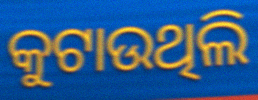
କୁଟାଉଥିଲି